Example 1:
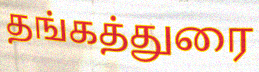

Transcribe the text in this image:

தங்கத்துரை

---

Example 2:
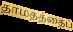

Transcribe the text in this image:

தாமதத்தைப்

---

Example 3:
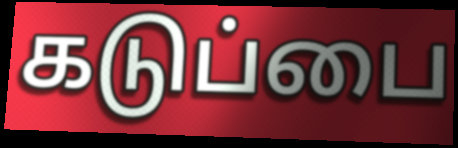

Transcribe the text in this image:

கடுப்பை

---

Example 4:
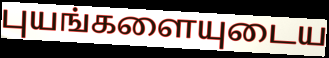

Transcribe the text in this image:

புயங்களையுடைய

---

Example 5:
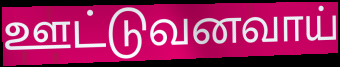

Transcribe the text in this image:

ஊட்டுவனவாய்